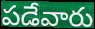
పడేవారు